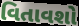
વિતાવશો